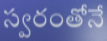
స్వరంతోనే